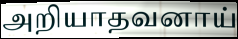
அறியாதவனாய்